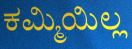
ಕಮ್ಮಿಯಿಲ್ಲ